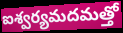
ఐశ్వర్యమదమత్తో